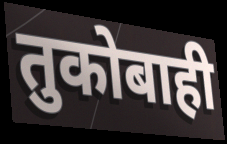
तुकोबाही